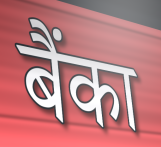
बैंका